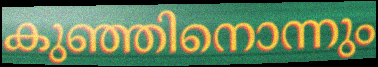
കുഞ്ഞിനൊന്നും